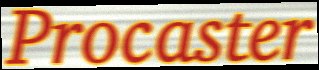
Procaster